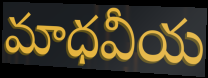
మాధవీయ